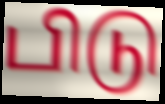
பிடு